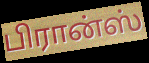
பிரான்ஸ்